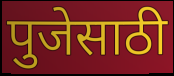
पुजेसाठी